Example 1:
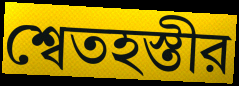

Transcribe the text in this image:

শ্বেতহস্তীর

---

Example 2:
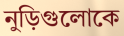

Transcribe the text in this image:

নুড়িগুলোকে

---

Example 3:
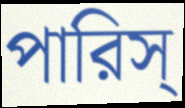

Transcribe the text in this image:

পারিস্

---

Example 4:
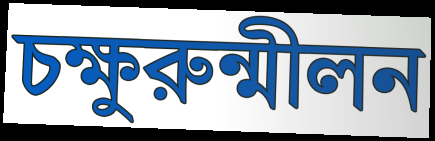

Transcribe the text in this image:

চক্ষুরুন্মীলন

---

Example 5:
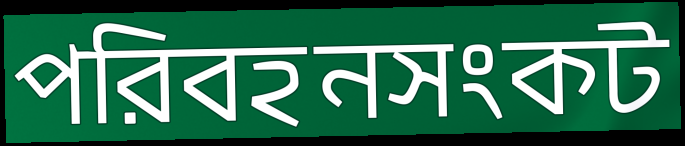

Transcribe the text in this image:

পরিবহনসংকট